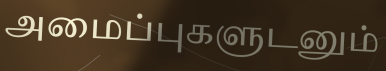
அமைப்புகளுடனும்